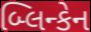
બ્લિન્કેન